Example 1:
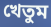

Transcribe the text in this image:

খেতুম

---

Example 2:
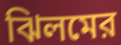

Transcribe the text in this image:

ঝিলমের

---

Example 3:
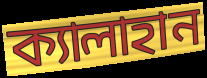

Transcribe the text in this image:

ক্যালাহান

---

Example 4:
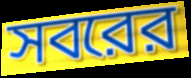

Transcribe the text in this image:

সবরের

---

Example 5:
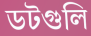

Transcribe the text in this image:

ডটগুলি